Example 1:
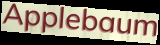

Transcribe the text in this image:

Applebaum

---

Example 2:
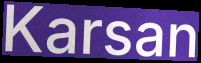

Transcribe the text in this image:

Karsan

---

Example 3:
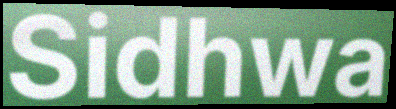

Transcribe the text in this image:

Sidhwa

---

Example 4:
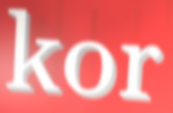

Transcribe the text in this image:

kor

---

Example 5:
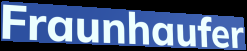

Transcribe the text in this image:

Fraunhaufer